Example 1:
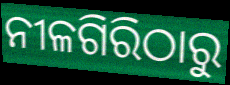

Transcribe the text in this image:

ନୀଳଗିରିଠାରୁ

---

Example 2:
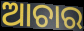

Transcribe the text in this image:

ଆଚାର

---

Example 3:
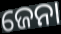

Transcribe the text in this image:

ଜେନା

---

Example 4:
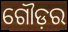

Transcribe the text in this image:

ଗୌଡ଼ର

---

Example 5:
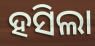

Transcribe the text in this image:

ହସିଲା